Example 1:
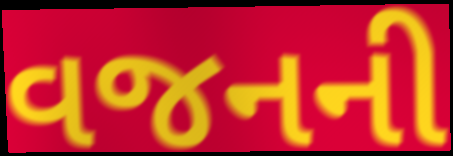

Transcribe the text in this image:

વજનની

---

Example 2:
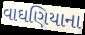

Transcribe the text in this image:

વાઘણિયાના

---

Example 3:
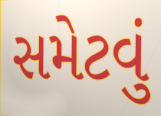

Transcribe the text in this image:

સમેટવું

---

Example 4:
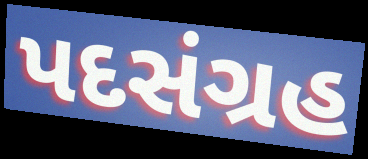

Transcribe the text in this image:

પદસંગ્રહ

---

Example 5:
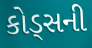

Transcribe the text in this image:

કોડ્સની